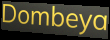
Dombeya